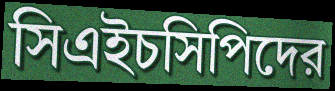
সিএইচসিপিদের